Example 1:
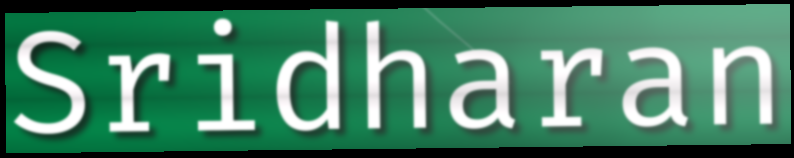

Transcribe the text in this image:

Sridharan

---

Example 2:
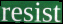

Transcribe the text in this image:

resist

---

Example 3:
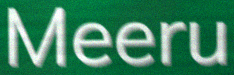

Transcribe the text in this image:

Meeru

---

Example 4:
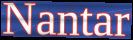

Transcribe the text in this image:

Nantar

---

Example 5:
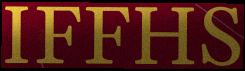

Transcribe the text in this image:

IFFHS